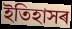
ইতিহাসৰ